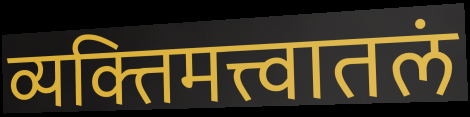
व्यक्तिमत्त्वातलं